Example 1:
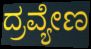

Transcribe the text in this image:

ದ್ರವ್ಯೇಣ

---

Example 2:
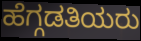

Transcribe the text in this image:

ಹೆಗ್ಗಡತಿಯರು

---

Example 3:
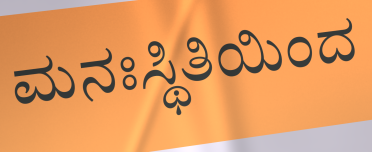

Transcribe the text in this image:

ಮನಃಸ್ಥಿತಿಯಿಂದ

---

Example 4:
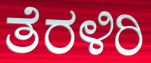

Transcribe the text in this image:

ತೆರಳಿರಿ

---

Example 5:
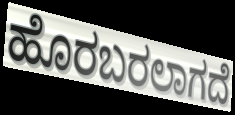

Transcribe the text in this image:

ಹೊರಬರಲಾಗದೆ